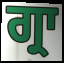
ਗ੍ਰਾ